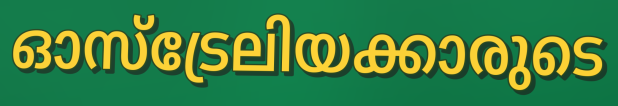
ഓസ്ട്രേലിയക്കാരുടെ